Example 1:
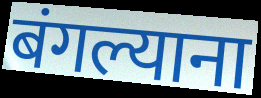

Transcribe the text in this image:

बंगल्याना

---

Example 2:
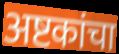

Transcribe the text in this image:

अष्टकांचा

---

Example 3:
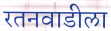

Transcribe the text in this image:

रतनवाडीला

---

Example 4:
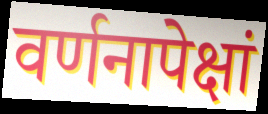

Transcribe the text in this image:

वर्णनापेक्षां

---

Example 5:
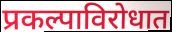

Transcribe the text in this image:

प्रकल्पाविरोधात